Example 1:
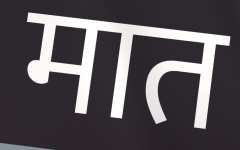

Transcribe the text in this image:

मात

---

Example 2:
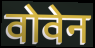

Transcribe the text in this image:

वोवेन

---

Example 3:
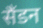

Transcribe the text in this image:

सैंडन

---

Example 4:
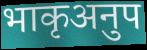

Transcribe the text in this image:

भाकृअनुप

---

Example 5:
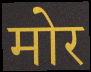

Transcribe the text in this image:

मोर